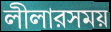
লীলারসময়